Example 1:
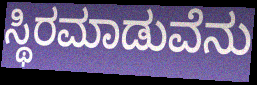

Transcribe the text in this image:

ಸ್ಥಿರಮಾಡುವೆನು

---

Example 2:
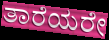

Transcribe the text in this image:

ತಾರೆಯರೇ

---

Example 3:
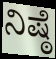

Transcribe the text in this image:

ನಿಷ್ಠೆ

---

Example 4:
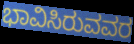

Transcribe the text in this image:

ಭಾವಿಸಿರುವವರ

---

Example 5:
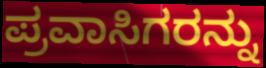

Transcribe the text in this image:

ಪ್ರವಾಸಿಗರನ್ನು